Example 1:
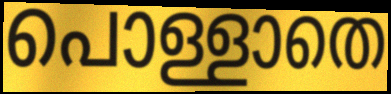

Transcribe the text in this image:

പൊള്ളാതെ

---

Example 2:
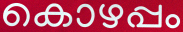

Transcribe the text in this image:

കൊഴപ്പം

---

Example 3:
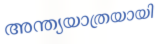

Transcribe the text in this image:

അന്ത്യയാത്രയായി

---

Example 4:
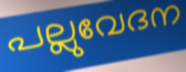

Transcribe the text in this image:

പല്ലുവേദന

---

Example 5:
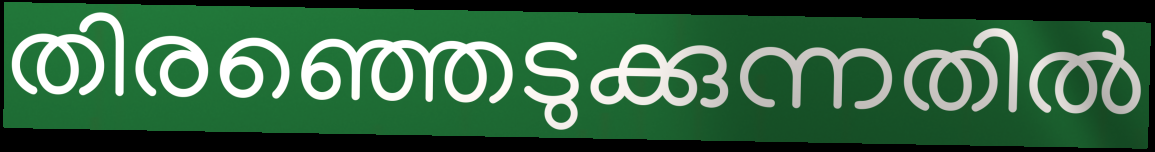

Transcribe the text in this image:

തിരഞ്ഞെടുക്കുന്നതിൽ